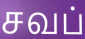
சவப்